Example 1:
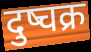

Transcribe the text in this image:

दुष्चक्र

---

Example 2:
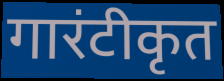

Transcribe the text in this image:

गारंटीकृत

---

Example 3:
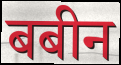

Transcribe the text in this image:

बबीन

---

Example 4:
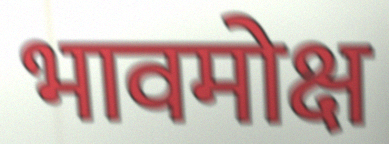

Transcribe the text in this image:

भावमोक्ष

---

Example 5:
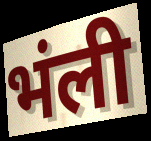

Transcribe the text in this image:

भंली